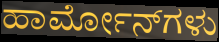
ಹಾರ್ಮೋನ್‌ಗಳು